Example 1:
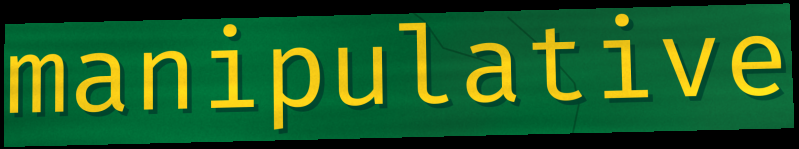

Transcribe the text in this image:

manipulative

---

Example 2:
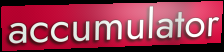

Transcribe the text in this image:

accumulator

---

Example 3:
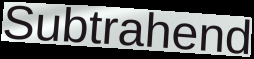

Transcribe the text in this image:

Subtrahend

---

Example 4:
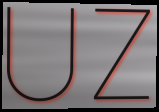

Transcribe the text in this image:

UZ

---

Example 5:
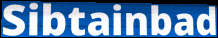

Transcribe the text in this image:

Sibtainbad